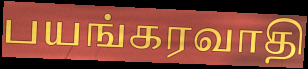
பயங்கரவாதி